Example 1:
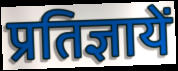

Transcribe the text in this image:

प्रतिज्ञायें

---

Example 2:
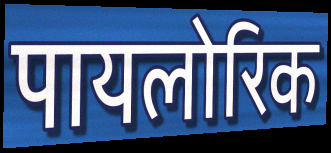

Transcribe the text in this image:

पायलोरिक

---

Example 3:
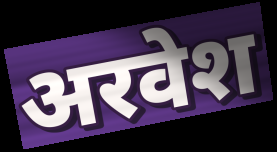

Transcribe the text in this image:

अरवेश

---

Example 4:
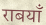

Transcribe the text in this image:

राबयाँ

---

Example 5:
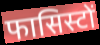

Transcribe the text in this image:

फासिस्टों